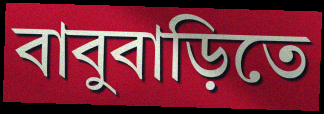
বাবুবাড়িতে